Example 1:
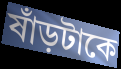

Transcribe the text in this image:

ষাঁড়টাকে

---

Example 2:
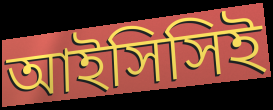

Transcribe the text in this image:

আইসিসিই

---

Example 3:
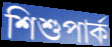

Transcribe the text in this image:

শিশুপার্ক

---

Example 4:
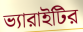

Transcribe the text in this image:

ভ্যারাইটির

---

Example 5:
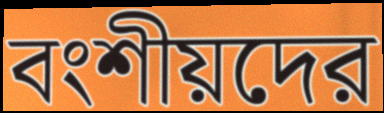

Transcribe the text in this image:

বংশীয়দের